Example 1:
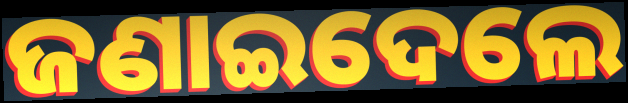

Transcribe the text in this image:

ଜଣାଇଦେଲେ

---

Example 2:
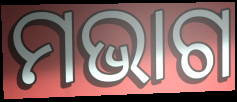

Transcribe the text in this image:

ମଭାଗ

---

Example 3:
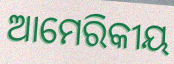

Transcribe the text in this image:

ଆମେରିକୀୟ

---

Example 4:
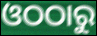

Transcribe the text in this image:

ଓଠଠାରୁ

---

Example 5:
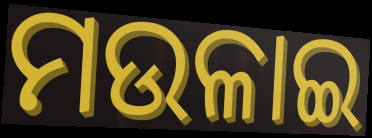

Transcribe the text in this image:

ମଉଳାଇ